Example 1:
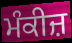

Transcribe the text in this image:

ਮੰਕੀਜ਼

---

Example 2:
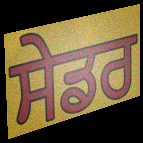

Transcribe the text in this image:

ਸੇਡਰ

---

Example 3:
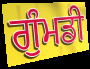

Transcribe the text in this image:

ਗੁੰਮਡੀ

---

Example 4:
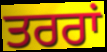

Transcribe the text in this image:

ਤਰਰਾਂ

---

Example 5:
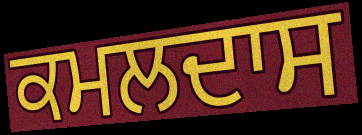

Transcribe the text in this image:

ਕਮਲਦਾਸ